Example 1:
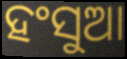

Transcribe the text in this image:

ହଂସୁଆ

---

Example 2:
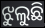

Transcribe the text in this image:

ଝୁଲୁଛି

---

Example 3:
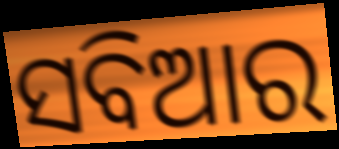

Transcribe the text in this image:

ସବିଆର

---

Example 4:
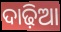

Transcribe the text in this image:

ଦାଢ଼ିଆ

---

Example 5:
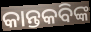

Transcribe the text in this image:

କାନ୍ତକବିଙ୍କ